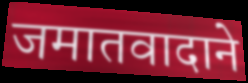
जमातवादाने